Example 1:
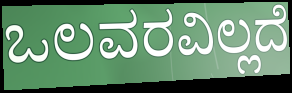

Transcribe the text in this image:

ಒಲವರವಿಲ್ಲದೆ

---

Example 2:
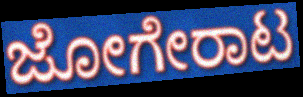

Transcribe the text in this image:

ಜೋಗೇರಾಟ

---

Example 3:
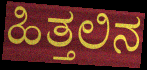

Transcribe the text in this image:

ಹಿತ್ತಲಿನ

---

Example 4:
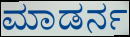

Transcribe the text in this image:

ಮಾಡರ್ನ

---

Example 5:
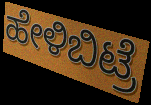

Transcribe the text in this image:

ಹೇಳಿಬಿಟ್ರೆ